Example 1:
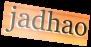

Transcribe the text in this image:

jadhao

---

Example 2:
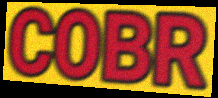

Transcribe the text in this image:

COBR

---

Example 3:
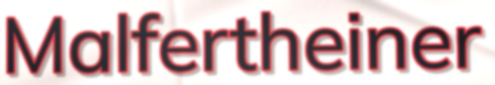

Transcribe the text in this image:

Malfertheiner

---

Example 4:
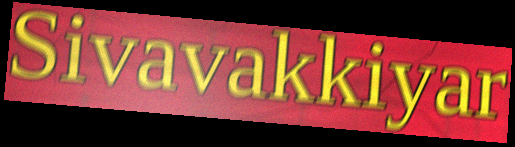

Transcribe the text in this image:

Sivavakkiyar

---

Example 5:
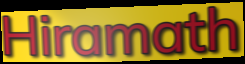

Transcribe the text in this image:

Hiramath